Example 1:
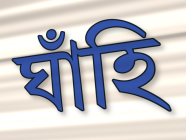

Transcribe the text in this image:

ঘাঁহি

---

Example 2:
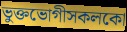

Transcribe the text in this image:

ভুক্তভোগীসকলকো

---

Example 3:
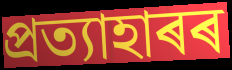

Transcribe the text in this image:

প্ৰত্যাহাৰৰ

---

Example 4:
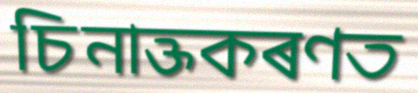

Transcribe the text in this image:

চিনাক্তকৰণত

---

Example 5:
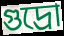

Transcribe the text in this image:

গুদ্ৰো